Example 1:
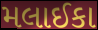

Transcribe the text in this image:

મલાઈકા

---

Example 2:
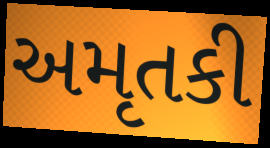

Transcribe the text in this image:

અમૃતકી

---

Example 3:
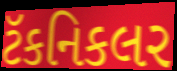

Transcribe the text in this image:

ટૅકનિકલર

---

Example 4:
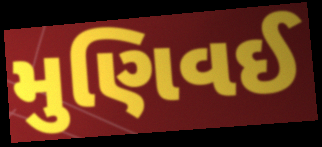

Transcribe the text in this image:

મુણિવઈ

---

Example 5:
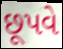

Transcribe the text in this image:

છૂપવે